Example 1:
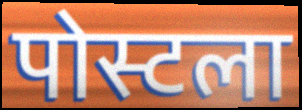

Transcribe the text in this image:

पोस्टला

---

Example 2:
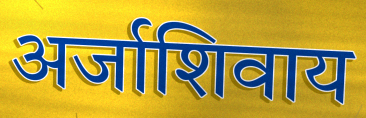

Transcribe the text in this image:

अर्जाशिवाय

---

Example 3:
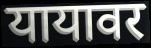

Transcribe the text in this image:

यायावर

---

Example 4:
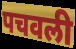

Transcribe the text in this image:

पचवली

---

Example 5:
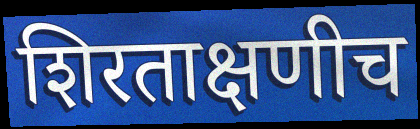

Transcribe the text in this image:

शिरताक्षणीच